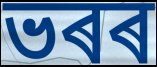
ভৰৰ